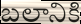
బలానికి